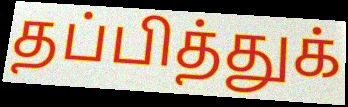
தப்பித்துக்